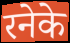
रनेके